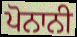
ਪੋਨਾਨੀ